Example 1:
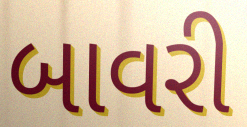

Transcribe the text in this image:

બાવરી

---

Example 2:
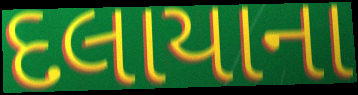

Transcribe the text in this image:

દલાયાના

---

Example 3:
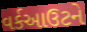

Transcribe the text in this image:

વર્કઆઉટને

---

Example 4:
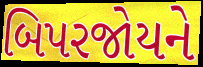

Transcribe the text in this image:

બિપરજોયને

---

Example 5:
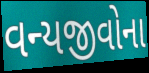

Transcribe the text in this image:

વન્યજીવોના